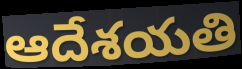
ఆదేశయతి